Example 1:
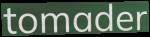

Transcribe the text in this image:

tomader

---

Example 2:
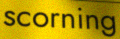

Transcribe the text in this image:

scorning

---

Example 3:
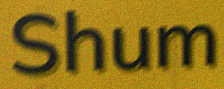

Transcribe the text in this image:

Shum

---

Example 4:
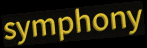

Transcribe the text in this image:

symphony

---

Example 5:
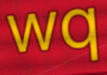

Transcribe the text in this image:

wq